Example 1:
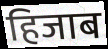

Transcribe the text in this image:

हिजाब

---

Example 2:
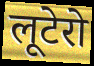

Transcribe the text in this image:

लूटेरो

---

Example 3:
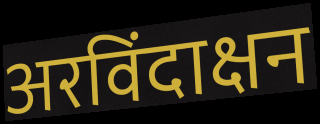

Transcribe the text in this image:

अरविंदाक्षन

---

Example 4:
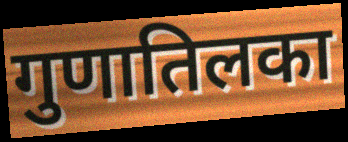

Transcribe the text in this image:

गुणातिलका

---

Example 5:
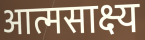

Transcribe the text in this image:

आत्मसाक्ष्य